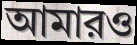
আমারও